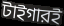
টাইগারই